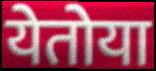
येतोया